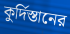
কুর্দিস্তানের